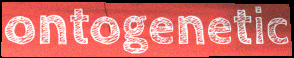
ontogenetic